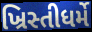
ખ્રિસ્તીધર્મે